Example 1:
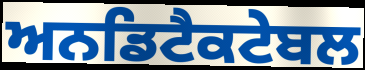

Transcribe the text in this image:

ਅਨਡਿਟੈਕਟੇਬਲ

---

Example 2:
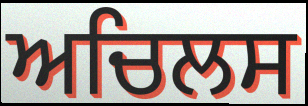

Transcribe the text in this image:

ਅਚਿਲਸ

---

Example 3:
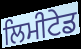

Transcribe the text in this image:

ਲਿਮੀਟੇਡ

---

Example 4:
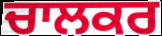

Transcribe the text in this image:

ਚਾਲਕਰ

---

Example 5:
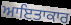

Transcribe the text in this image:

ਆਇਤਾਕਾਰ